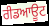
ਰੀਡਆਊਟ